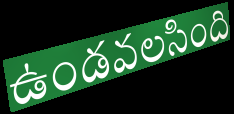
ఉండవలసింది